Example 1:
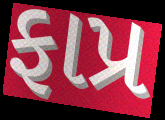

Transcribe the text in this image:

ફાપ્ર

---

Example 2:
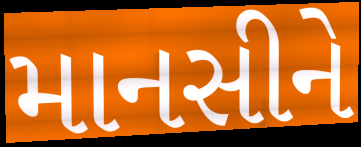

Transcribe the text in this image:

માનસીને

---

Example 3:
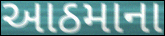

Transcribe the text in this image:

આઠમાના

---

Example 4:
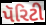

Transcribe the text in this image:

પૅરિટી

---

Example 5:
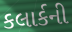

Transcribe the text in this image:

કલાર્કની